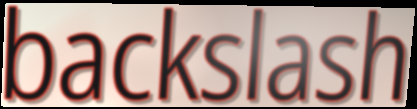
backslash